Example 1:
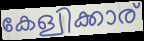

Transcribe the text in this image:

കേള്വിക്കാര്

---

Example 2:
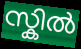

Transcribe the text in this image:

സ്കിൽ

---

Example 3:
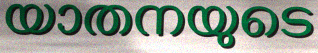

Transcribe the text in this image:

യാതനയുടെ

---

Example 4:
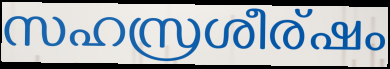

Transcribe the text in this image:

സഹസ്രശീര്ഷം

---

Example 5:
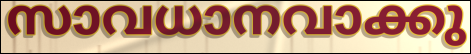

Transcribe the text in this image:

സാവധാനവാക്കു